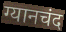
ग्यानचंद